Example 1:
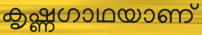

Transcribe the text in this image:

കൃഷ്ണഗാഥയാണ്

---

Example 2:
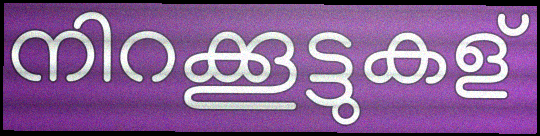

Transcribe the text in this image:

നിറക്കൂട്ടുകള്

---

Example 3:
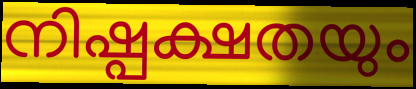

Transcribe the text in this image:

നിഷ്പക്ഷതയും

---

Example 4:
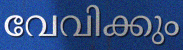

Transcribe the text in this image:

വേവിക്കും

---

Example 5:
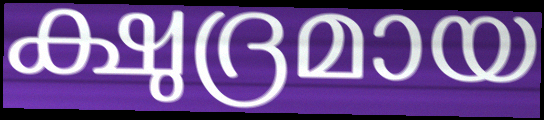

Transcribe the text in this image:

ക്ഷുദ്രമായ